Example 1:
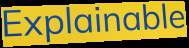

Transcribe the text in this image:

Explainable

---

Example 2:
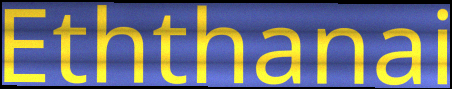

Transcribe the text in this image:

Eththanai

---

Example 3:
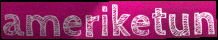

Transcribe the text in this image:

ameriketun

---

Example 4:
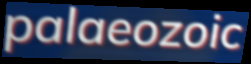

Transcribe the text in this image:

palaeozoic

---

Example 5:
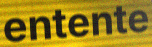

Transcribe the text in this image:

entente